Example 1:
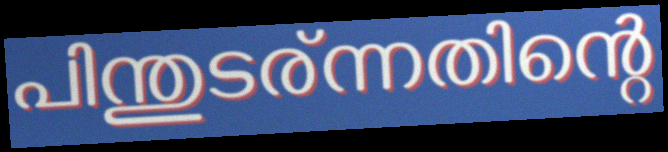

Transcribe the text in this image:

പിന്തുടര്ന്നതിന്റെ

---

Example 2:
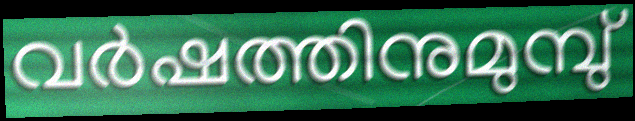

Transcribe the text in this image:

വർഷത്തിനുമുമ്പു്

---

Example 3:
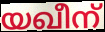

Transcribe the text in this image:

യഖീന്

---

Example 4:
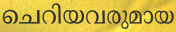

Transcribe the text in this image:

ചെറിയവരുമായ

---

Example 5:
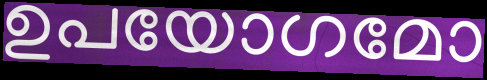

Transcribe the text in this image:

ഉപയോഗമോ